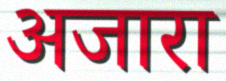
अजारा